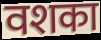
वशका